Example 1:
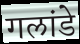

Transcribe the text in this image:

गलांडे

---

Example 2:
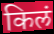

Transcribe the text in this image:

किलं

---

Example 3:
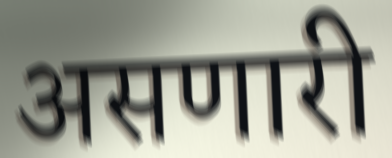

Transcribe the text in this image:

असणारी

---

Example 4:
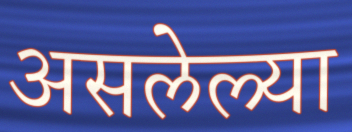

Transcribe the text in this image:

असलेल्या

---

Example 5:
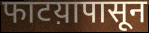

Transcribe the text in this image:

फाटय़ापासून